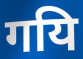
गयि